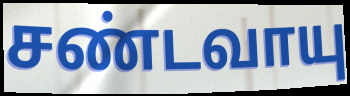
சண்டவாயு